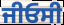
ਜੀਓਸੀ